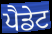
ਪੈਡੇਟ